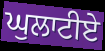
ਘੁਲਾਟੀਏ